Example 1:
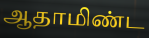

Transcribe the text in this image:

ஆதாமிண்ட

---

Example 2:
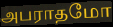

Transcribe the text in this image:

அபராதமோ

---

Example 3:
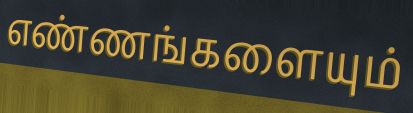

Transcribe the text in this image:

எண்ணங்களையும்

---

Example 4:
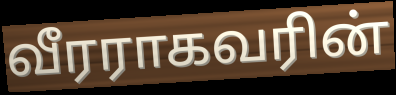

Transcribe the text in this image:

வீரராகவரின்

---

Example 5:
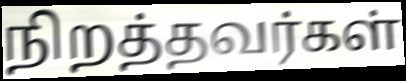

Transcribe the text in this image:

நிறத்தவர்கள்